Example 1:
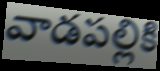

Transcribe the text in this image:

వాడపల్లికి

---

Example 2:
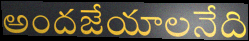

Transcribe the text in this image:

అందజేయాలనేది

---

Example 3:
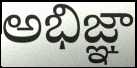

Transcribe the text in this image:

అభిజ్ఞా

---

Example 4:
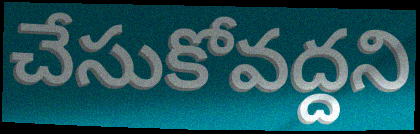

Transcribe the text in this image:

చేసుకోవద్దని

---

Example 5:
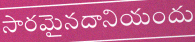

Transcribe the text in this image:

సారమైనదానియందు